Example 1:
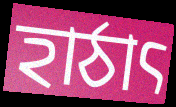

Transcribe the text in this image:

হাঠাৎ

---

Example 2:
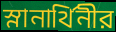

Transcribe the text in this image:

স্নানার্থিনীর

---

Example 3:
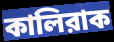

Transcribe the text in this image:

কালিরাক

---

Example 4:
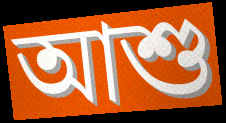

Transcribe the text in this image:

আশু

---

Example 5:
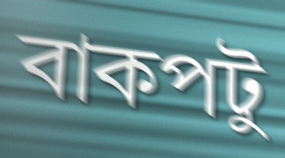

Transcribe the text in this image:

বাকপটু